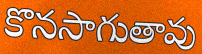
కొనసాగుతావు